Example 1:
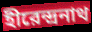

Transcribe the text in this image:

হীরেন্দ্রনাথ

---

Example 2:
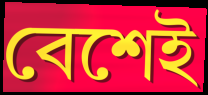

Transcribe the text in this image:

বেশেই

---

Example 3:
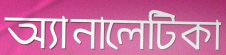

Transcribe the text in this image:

অ্যানালেটিকা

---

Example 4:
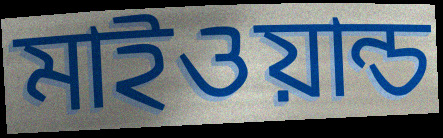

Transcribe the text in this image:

মাইওয়ান্ড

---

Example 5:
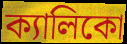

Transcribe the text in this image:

ক্যালিকো